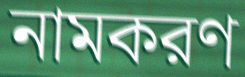
নামকরণ